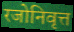
रजोनिवृत्त